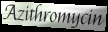
Azithromycin